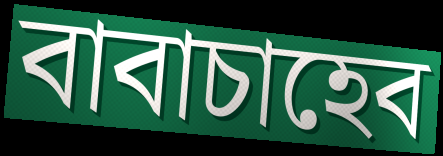
বাবাচাহেব